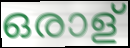
ഒരാള്